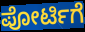
ಪೋರ್ಟಿಗೆ